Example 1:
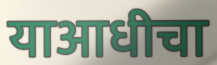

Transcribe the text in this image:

याआधीचा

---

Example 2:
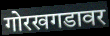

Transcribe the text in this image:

गोरखगडावर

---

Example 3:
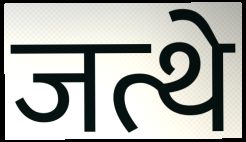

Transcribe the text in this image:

जत्थे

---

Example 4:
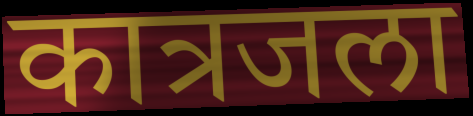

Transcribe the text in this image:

कात्रजला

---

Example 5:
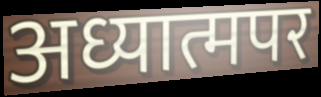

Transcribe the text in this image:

अध्यात्मपर